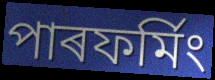
পাৰফৰ্মিং